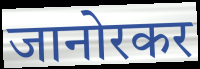
जानोरकर